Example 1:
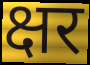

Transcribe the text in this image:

क्षर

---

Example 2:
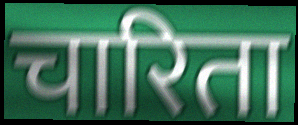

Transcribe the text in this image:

चारिता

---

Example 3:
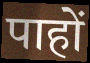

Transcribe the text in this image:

पाहों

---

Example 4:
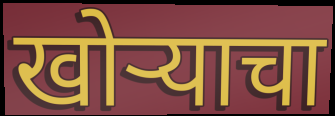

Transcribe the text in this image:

खोर्‍याचा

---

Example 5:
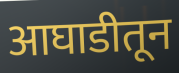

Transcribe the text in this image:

आघाडीतून